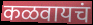
कळवायचं